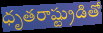
ధృతరాష్ట్రుడితో